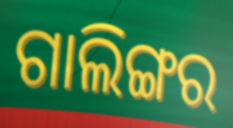
ଗାଲିଙ୍ଗର